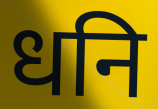
धनि